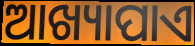
ଆଖ୍ୟାପାଏ